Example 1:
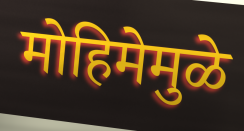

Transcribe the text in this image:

मोहिमेमुळे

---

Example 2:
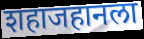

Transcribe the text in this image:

शहाजहानला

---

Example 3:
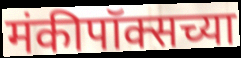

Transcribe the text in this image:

मंकीपॉक्सच्या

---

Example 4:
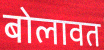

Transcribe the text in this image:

बोलावत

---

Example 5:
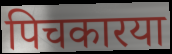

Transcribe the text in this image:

पिचकारया